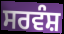
ਸਰਵੰਸ਼